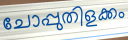
ചോപ്പുതിളക്കം